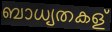
ബാധ്യതകള്